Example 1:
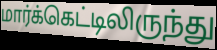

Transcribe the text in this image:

மார்க்கெட்டிலிருந்து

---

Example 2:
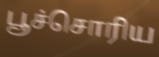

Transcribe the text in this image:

பூச்சொரிய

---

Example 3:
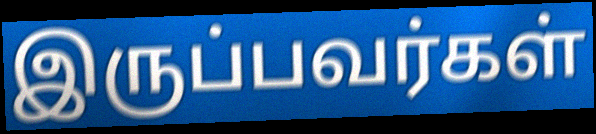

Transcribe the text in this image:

இருப்பவர்கள்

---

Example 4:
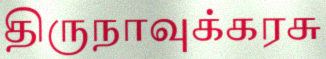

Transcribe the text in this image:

திருநாவுக்கரசு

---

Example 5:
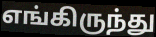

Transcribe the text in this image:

எங்கிருந்து